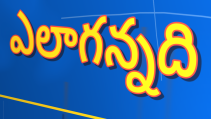
ఎలాగన్నది